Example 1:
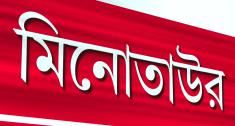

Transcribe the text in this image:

মিনোতাউর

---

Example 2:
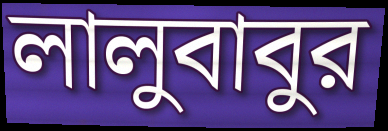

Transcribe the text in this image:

লালুবাবুর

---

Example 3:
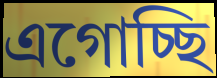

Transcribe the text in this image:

এগোচ্ছি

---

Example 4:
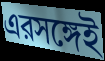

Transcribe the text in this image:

এরসঙ্গেই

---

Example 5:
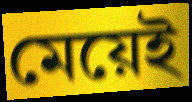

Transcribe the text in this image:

মেয়েই